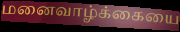
மனைவாழ்க்கையை